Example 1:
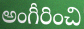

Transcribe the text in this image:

అంగీరించి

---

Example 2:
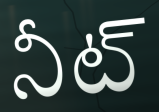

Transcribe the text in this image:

నీట్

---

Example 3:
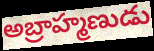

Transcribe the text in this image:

అబ్రాహ్మణుడు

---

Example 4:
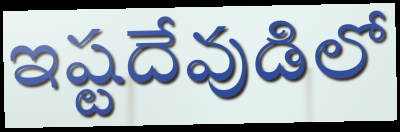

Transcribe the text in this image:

ఇష్టదేవుడిలో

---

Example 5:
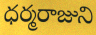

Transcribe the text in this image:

ధర్మరాజుని